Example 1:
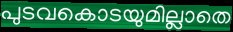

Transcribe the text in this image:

പുടവകൊടയുമില്ലാതെ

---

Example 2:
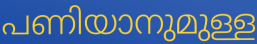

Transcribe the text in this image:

പണിയാനുമുള്ള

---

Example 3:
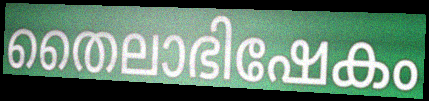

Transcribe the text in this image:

തൈലാഭിഷേകം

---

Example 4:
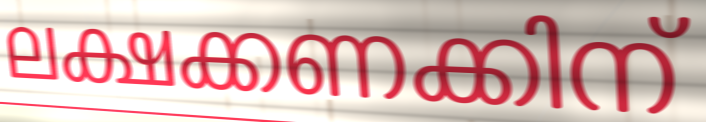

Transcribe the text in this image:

ലക്ഷക്കണക്കിന്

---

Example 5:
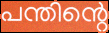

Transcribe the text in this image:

പന്തിന്റെ